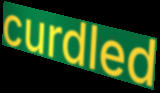
curdled